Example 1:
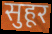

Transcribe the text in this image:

सुहूर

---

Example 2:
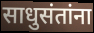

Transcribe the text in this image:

साधुसंतांना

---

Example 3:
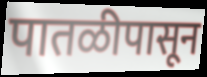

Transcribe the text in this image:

पातळीपासून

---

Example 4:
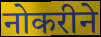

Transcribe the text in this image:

नोकरीने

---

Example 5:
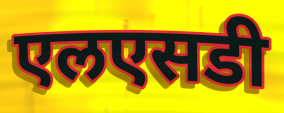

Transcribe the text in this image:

एलएसडी